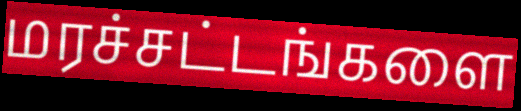
மரச்சட்டங்களை